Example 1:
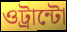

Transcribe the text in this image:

ওট্রান্টো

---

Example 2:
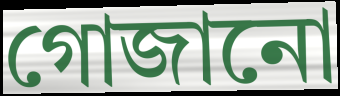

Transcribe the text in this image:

গোজানো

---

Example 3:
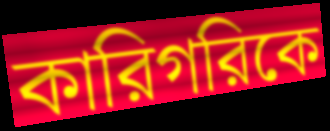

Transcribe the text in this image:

কারিগরিকে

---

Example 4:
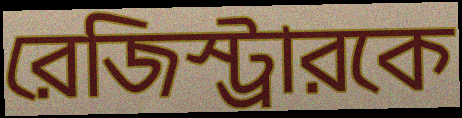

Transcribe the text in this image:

রেজিস্ট্রারকে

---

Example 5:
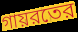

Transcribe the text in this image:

গায়রতের